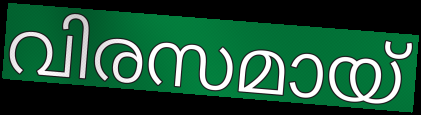
വിരസമായ്